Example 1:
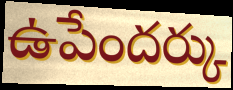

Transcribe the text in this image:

ఉపేందర్కు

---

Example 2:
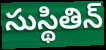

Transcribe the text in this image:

సుస్థితిన్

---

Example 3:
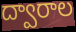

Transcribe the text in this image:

ద్వారాల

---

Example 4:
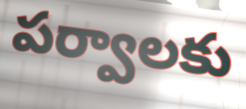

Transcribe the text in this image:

పర్వాలకు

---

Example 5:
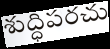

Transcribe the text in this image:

శుద్ధిపరచు